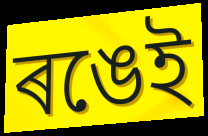
ৰঙেই